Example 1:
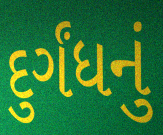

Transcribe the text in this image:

દુર્ગંધનું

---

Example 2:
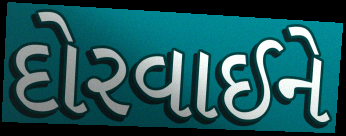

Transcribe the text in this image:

દોરવાઈને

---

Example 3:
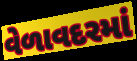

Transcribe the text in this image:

વેળાવદરમાં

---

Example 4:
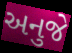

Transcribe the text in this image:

અનુજે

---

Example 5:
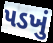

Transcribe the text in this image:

પડખું